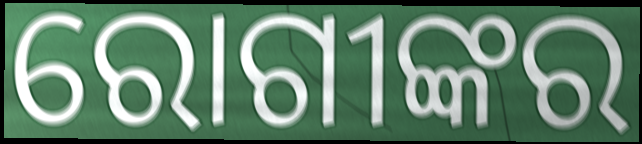
ରୋଗୀଙ୍କର